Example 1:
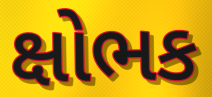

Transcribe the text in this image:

ક્ષોભક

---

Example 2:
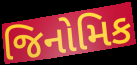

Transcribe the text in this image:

જિનોમિક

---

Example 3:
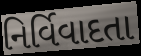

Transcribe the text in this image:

નિર્વિવાદતા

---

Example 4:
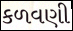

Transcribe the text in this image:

કળવણી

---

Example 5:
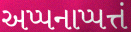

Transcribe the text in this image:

અપ્પનાપ્પત્તં